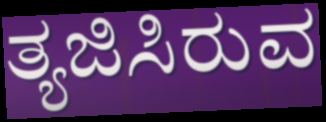
ತ್ಯಜಿಸಿರುವ